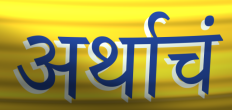
अर्थाचं